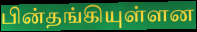
பின்தங்கியுள்ளன